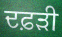
ਦਫ਼ੜੀ